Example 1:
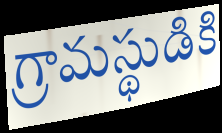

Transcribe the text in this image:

గ్రామస్థుడికి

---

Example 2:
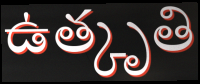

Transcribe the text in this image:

ఉత్కృతి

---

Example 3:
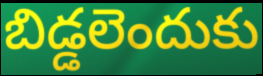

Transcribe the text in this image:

బిడ్డలెందుకు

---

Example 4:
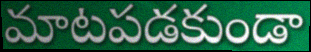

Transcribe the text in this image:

మాటపడకుండా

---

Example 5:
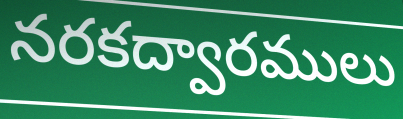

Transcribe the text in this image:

నరకద్వారములు